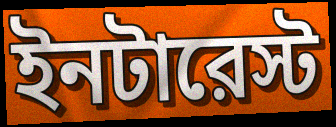
ইনটারেস্ট